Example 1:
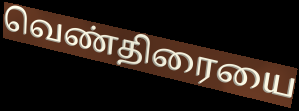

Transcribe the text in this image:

வெண்திரையை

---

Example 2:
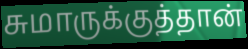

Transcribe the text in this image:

சுமாருக்குத்தான்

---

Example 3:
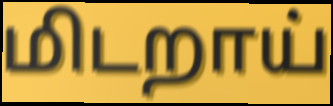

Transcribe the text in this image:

மிடறாய்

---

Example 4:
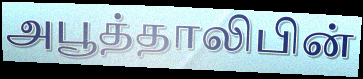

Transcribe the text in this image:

அபூத்தாலிபின்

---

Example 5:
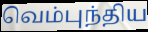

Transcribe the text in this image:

வெம்புந்திய